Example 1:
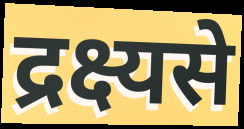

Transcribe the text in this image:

द्रक्ष्यसे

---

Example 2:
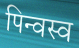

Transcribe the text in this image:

पिन्वस्व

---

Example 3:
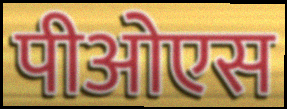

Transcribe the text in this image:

पीओएस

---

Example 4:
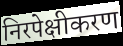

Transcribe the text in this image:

निरपेक्षीकरण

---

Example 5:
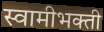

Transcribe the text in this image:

स्वामीभक्ती